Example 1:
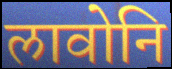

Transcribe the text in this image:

लावोनि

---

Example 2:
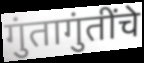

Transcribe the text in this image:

गुंतागुंतींचे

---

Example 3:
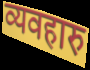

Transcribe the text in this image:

व्यवहारु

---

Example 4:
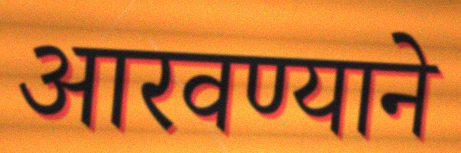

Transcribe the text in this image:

आरवण्याने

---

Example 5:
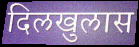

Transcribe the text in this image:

दिलखुलास